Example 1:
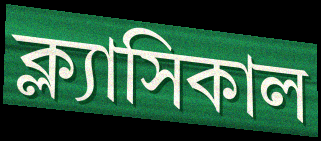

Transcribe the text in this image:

ক্ল্যাসিকাল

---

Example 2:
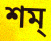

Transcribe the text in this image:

শম্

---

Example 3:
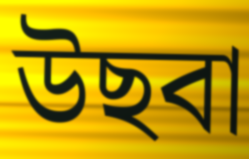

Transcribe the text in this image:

উছবা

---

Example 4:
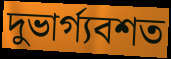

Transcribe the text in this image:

দুভার্গ্যবশত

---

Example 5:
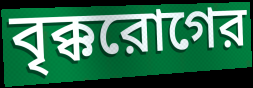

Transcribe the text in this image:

বৃক্করোগের